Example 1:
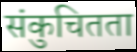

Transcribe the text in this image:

संकुचितता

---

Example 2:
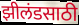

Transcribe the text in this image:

झीलंडसाठी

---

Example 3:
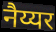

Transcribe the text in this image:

नैय्यर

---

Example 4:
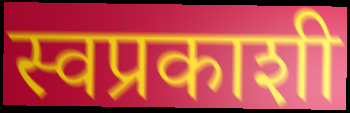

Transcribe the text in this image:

स्वप्रकाशी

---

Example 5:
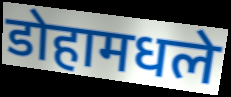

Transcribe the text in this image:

डोहामधले